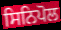
ਸਿਨਿਪੋਲ